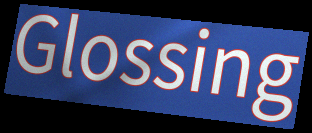
Glossing